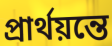
প্রার্থয়ন্তে